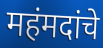
महंमदांचे